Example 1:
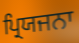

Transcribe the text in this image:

ਪ੍ਰਿਯਜਨਾ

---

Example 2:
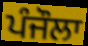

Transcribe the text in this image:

ਪੰਜੌਲਾ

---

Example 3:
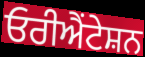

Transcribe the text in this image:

ਓਰੀਐਂਟੇਸ਼ਨ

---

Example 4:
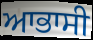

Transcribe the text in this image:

ਆਭਾਸੀ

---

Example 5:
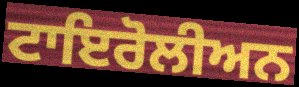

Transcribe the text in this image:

ਟਾਇਰੋਲੀਅਨ